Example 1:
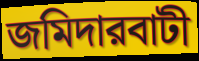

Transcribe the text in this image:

জমিদারবাটী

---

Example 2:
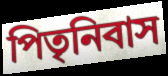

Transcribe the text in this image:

পিতৃনিবাস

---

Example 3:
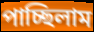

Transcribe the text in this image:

পাচ্ছিলাম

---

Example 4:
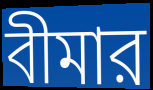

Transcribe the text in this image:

বীমার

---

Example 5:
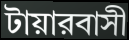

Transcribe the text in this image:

টায়ারবাসী